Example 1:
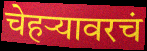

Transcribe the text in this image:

चेहर्‍यावरचं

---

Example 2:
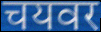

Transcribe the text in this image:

चयवर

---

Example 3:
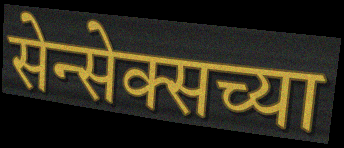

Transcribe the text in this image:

सेन्सेक्सच्या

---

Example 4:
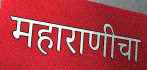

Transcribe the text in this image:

महाराणीचा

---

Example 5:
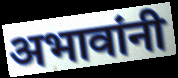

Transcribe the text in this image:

अभावांनी